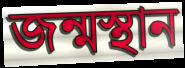
জন্মস্থান